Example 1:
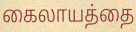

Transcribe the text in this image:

கைலாயத்தை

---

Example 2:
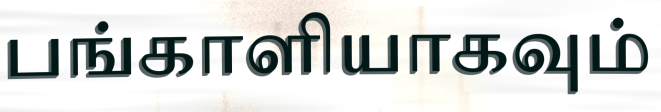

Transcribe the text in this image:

பங்காளியாகவும்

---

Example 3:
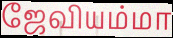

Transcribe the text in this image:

ஜேவியம்மா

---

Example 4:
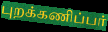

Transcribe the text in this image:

புறக்கணிப்பர்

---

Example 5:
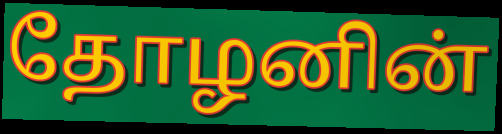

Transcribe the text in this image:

தோழனின்